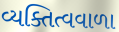
વ્યક્તિત્વવાળા